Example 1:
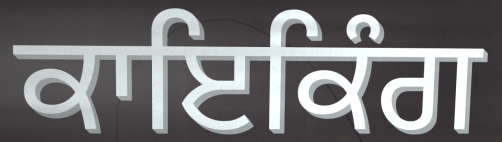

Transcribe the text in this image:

ਕਾਇਕਿੰਗ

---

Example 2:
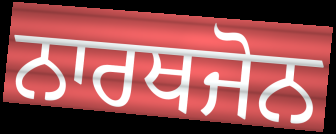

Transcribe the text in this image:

ਨਾਰਥਜੋਨ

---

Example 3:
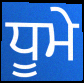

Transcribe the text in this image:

ਧੂਮੇ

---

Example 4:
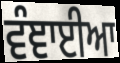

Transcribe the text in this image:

ਵੰਞਾਈਆ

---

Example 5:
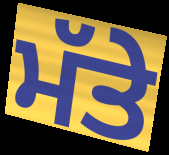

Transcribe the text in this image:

ਮੱਤੇ